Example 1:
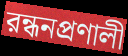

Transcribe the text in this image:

রন্ধনপ্রণালী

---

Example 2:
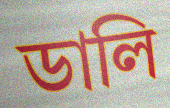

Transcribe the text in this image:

ডালি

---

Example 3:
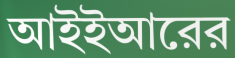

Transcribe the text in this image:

আইইআরের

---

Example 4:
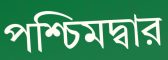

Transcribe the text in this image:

পশ্চিমদ্বার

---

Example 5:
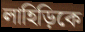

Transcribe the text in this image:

লাহিড়িকে